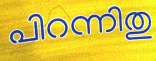
പിറന്നിതു